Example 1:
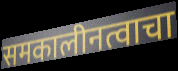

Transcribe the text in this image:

समकालीनत्वाचा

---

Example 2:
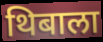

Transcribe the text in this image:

थिबाला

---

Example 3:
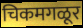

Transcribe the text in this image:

चिकमगळूर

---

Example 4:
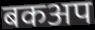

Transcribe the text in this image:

बकअप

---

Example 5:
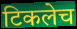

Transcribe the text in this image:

टिकलेच